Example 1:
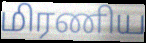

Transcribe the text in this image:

மிரணிய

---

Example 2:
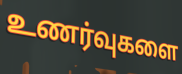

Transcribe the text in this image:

உணர்வுகளை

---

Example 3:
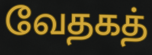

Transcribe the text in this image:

வேதகத்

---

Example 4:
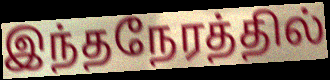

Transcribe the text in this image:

இந்தநேரத்தில்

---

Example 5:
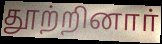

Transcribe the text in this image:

தூற்றினார்